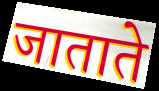
जाताते